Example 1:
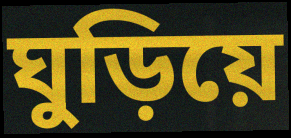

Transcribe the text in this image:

ঘুড়িয়ে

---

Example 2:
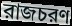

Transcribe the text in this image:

রাজচরণ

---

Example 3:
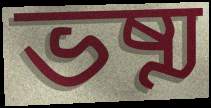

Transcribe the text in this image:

ভষ্ম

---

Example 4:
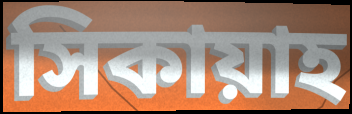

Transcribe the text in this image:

সিকায়াহ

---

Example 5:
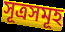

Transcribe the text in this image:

সূত্রসমূহ